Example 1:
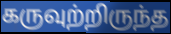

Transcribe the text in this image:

கருவுற்றிருந்த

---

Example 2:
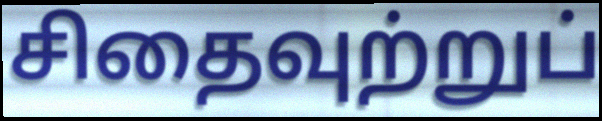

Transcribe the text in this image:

சிதைவுற்றுப்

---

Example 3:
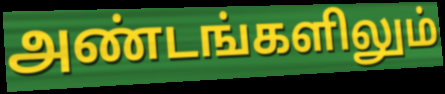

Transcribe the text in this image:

அண்டங்களிலும்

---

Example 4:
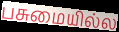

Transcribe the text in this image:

பசுமையில்ல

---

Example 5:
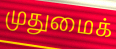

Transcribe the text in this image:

முதுமைக்